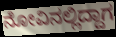
ನೋವಿನಲ್ಲಿದ್ದಾಗ